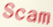
Scam